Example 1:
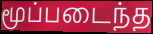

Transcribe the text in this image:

மூப்படைந்த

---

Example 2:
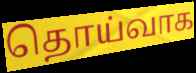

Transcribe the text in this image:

தொய்வாக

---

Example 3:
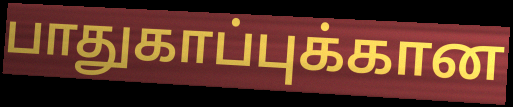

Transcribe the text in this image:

பாதுகாப்புக்கான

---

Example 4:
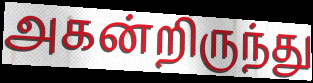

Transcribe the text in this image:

அகன்றிருந்து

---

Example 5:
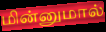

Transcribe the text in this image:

மின்னுமால்